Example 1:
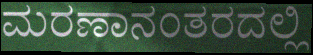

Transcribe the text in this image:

ಮರಣಾನಂತರದಲ್ಲಿ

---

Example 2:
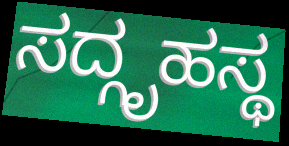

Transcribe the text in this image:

ಸದ್ಗೃಹಸ್ಥ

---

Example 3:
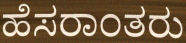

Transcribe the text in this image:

ಹೆಸರಾಂತರು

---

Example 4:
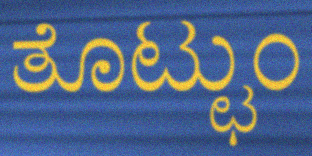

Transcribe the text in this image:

ತೊಟ್ಟುಂ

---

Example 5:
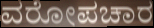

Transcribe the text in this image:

ವರೋಪಚಾರ